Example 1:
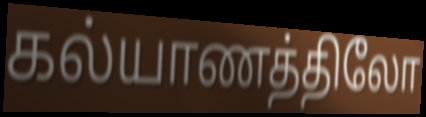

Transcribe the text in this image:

கல்யாணத்திலோ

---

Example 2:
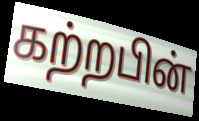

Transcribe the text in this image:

கற்றபின்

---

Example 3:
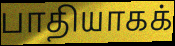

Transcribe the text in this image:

பாதியாகக்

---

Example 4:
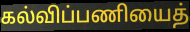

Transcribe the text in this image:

கல்விப்பணியைத்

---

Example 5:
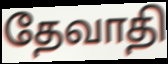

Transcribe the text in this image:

தேவாதி